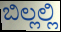
ಬಿಲ್ಲಲ್ಲಿ